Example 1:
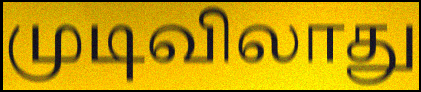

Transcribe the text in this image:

முடிவிலாது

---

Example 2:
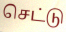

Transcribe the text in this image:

செட்டு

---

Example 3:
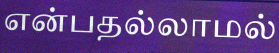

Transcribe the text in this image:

என்பதல்லாமல்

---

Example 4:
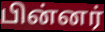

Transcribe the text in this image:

பின்னர்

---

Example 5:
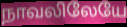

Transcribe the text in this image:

நாவலிலேயே